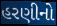
હરણીનો